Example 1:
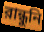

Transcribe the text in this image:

রান্ধুনি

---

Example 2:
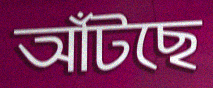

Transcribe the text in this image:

আঁটছে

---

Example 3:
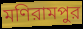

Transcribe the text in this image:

মণিরামপুর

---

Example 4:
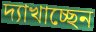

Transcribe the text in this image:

দ্যাখাচ্ছেন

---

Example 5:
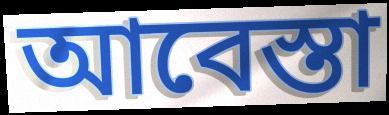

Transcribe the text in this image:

আবেস্তা